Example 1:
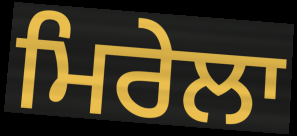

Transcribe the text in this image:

ਮਿਰੇਲਾ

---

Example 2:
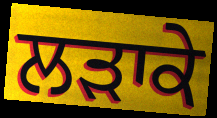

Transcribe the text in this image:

ਲੜਾਕੇ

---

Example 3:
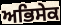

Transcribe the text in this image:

ਅਭਿਸੇਕ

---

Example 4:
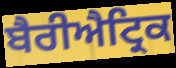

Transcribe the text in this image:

ਬੈਰੀਐਟ੍ਰਿਕ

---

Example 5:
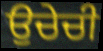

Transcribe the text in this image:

ਉਚੇਚੀ